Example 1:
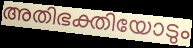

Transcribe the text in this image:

അതിഭക്തിയോടും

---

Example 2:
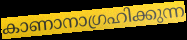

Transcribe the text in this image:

കാണാനാഗ്രഹിക്കുന്ന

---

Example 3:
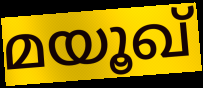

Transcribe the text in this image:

മയൂഖ്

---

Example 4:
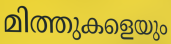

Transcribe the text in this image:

മിത്തുകളെയും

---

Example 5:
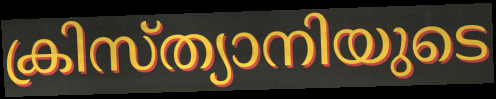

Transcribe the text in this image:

ക്രിസ്ത്യാനിയുടെ